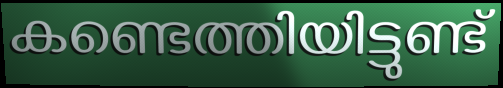
കണ്ടെത്തിയിട്ടുണ്ട്